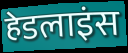
हेडलाइंस